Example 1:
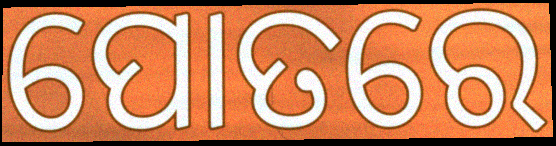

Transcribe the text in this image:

ପୋତରେ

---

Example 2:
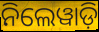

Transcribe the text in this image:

ନିଲେୱାଡ଼ି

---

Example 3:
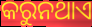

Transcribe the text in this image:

କରୁନଥାଏ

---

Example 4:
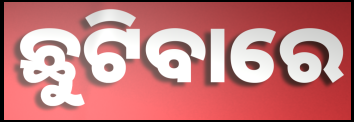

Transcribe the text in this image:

ଛୁଟିବାରେ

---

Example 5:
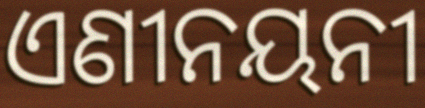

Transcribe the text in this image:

ଏଣୀନୟନୀ